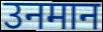
उनमान